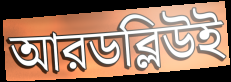
আরডব্লিউই